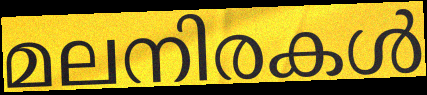
മലനിരകൾ